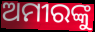
ଅମୀରଙ୍କୁ